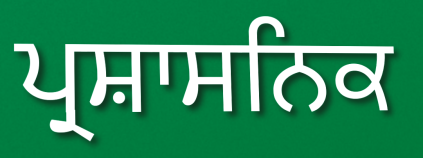
ਪ੍ਰਸ਼ਾਸਨਿਕ